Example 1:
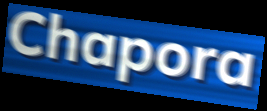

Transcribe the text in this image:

Chapora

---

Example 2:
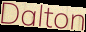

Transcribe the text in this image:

Dalton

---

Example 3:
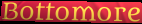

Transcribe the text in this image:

Bottomore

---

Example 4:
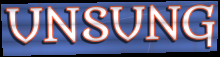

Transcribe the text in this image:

UNSUNG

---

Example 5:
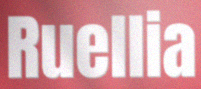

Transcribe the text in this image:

Ruellia